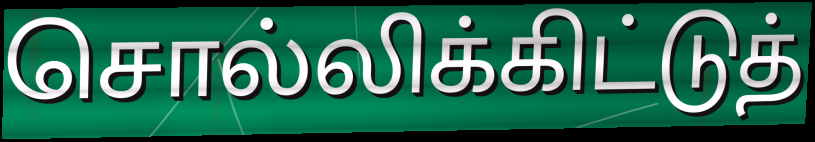
சொல்லிக்கிட்டுத்